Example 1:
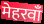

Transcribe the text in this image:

मेहरवाँ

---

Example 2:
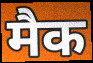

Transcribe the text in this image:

मैक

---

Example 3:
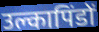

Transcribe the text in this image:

उल्कापिंडों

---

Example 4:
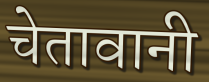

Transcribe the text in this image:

चेतावानी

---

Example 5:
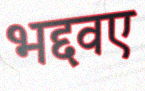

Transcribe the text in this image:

भद्दवए